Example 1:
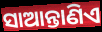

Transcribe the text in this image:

ସାଆନ୍ତାଣିଏ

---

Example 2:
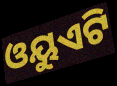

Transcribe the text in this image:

ଓୟୁଏଟି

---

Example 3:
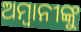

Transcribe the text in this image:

ଅମ୍ବାନୀଙ୍କୁ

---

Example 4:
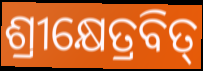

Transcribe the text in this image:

ଶ୍ରୀକ୍ଷେତ୍ରବିତ୍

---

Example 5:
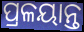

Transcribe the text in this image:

ପ୍ରଳୟାନ୍ତ